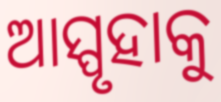
ଆସ୍ପୃହାକୁ